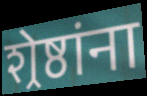
श्रेष्ठांना